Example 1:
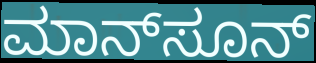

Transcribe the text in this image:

ಮಾನ್‌ಸೂನ್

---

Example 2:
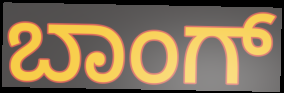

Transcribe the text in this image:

ಬಾಂಗ್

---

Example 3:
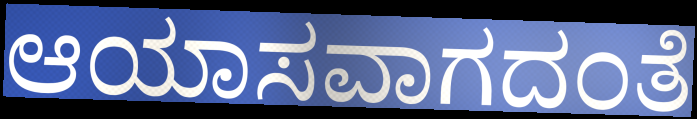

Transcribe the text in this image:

ಆಯಾಸವಾಗದಂತೆ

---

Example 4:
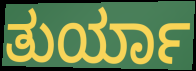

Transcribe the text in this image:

ತುರ್ಯಾ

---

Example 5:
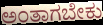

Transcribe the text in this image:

ಅಂತಾಗಬೇಕು